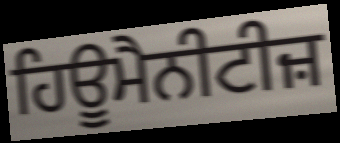
ਹਿਊਮੈਨੀਟੀਜ਼